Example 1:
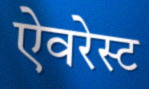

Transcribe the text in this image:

ऐवरेस्ट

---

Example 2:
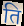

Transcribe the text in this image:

ति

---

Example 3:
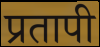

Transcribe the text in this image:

प्रतापी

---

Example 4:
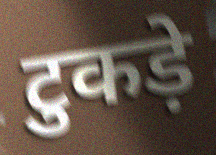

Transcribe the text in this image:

टुकड़े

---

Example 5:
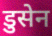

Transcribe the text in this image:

डुसेन